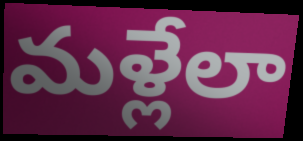
మళ్లేలా